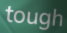
tough